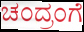
ಚಂದ್ರಂಗೆ